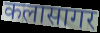
कलासागर